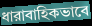
ধারাবাহিকভাবে